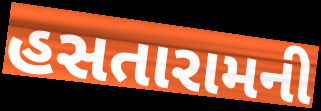
હસતારામની